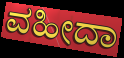
ವಹೀದಾ